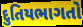
દુતિયભાગતો